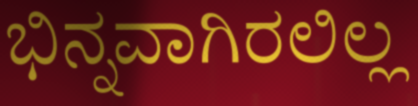
ಭಿನ್ನವಾಗಿರಲಿಲ್ಲ